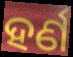
ହର୍ଣ